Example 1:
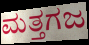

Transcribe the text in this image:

ಮತ್ತಗಜ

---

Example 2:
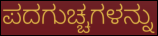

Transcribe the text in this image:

ಪದಗುಚ್ಚಗಳನ್ನು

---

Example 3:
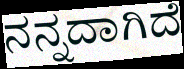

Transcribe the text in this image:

ನನ್ನದಾಗಿದೆ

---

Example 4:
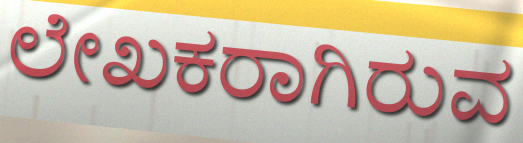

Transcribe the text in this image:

ಲೇಖಕರಾಗಿರುವ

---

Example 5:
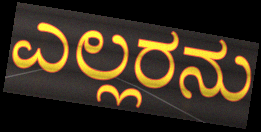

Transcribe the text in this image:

ಎಲ್ಲರನು